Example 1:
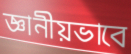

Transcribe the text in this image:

জ্ঞানীয়ভাবে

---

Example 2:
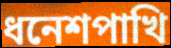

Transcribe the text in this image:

ধনেশপাখি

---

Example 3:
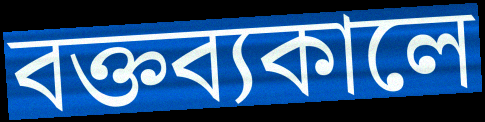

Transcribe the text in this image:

বক্তব্যকালে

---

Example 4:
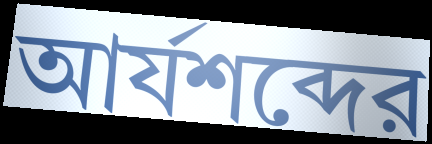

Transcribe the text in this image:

আর্যশব্দের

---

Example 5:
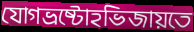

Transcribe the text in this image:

যোগভ্রষ্টোহভিজায়তে